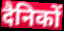
दैनिकों